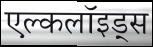
एल्कलॉइड्स